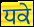
ਧਕੇ